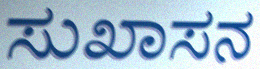
ಸುಖಾಸನ